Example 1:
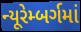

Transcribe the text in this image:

ન્યૂરેમ્બર્ગમાં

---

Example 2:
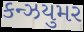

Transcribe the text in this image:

કન્ઝયુમર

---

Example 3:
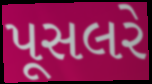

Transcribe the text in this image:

પૂસલરે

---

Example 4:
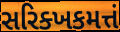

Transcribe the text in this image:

સરિક્ખકમત્તં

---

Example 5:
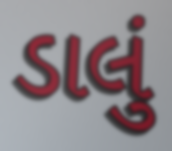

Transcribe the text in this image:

ડાલું